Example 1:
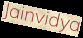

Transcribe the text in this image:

Jainvidya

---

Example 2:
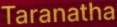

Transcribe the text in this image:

Taranatha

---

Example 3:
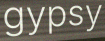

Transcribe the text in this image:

gypsy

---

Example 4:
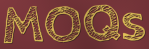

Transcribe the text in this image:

MOQs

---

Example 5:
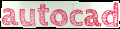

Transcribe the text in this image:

autocad